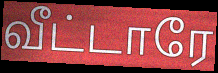
வீட்டாரே